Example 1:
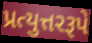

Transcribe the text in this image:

પ્રત્યુત્તરરૂપે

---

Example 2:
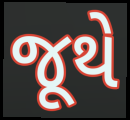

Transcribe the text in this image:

જૂથે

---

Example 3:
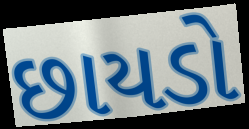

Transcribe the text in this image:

છાયડો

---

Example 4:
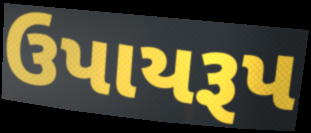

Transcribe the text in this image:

ઉપાયરૂપ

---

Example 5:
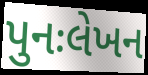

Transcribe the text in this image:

પુનઃલેખન